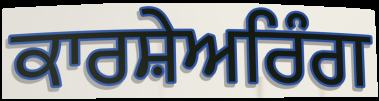
ਕਾਰਸ਼ੇਅਰਿੰਗ